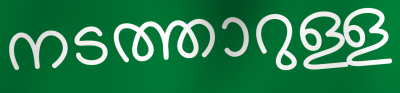
നടത്താറുള്ള